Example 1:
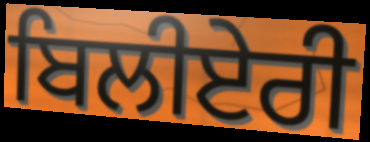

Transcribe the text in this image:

ਬਿਲੀਏਰੀ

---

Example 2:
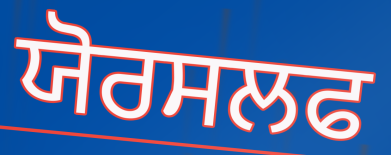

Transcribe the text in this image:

ਯੋਰਸਲਫ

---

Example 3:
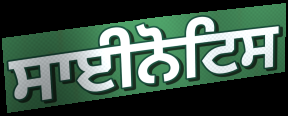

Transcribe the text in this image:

ਸਾਈਨੋਟਿਸ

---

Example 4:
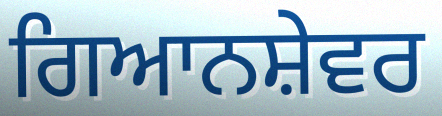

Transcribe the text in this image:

ਗਿਆਨਸ਼ੇਵਰ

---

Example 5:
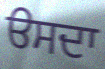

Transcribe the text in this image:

ੳਸਦਾ